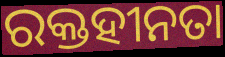
ରକ୍ତହୀନତା